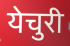
येचुरी